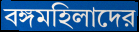
বঙ্গমহিলাদের